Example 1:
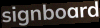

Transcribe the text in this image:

signboard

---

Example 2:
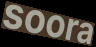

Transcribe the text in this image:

soora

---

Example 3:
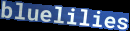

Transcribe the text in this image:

bluelilies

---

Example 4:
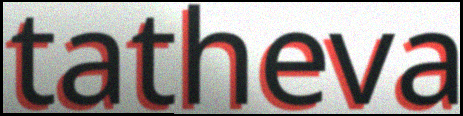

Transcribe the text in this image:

tatheva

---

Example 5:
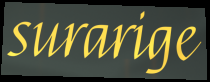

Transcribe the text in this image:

surarige